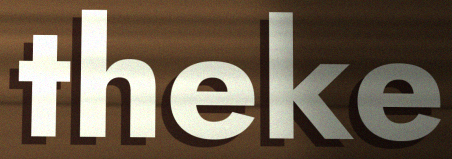
theke